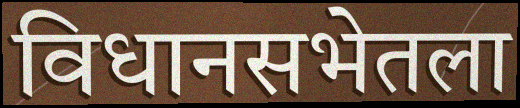
विधानसभेतला